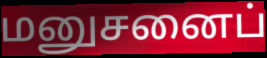
மனுசனைப்